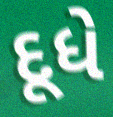
દૂધે